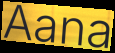
Aana